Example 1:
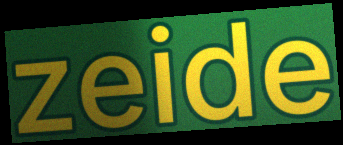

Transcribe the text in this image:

zeide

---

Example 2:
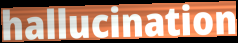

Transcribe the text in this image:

hallucination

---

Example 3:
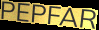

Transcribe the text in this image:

PEPFAR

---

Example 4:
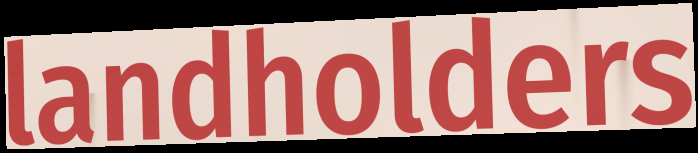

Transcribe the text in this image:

landholders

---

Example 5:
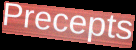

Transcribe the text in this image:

Precepts